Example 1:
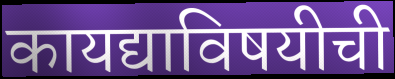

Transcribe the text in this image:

कायद्याविषयीची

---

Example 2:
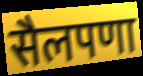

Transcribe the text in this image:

सैलपणा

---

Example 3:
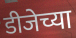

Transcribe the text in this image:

डीजेच्या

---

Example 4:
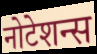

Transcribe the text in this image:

नोटेशन्स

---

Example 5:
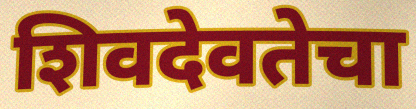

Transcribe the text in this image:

शिवदेवतेचा